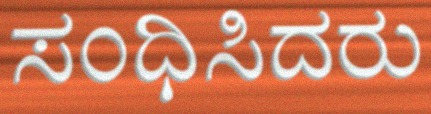
ಸಂಧಿಸಿದರು